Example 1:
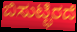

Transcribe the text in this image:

ಬಿಸುಟ್ಟಿರದೆ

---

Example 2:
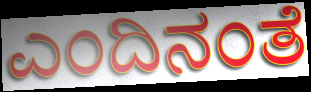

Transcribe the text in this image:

ಎಂದಿನಂತೆ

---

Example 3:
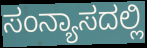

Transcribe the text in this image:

ಸಂನ್ಯಾಸದಲ್ಲಿ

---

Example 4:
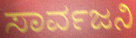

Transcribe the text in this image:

ಸಾರ್ವಜನಿ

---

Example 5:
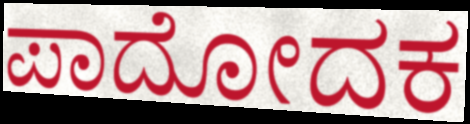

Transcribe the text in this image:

ಪಾದೋದಕ